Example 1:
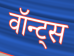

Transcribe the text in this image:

वॉन्ट्स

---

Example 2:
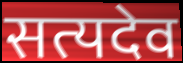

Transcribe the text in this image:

सत्‍यदेव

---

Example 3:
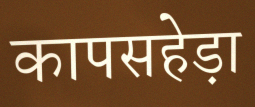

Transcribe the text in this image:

कापसहेड़ा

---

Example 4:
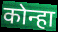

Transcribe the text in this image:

कोन्हा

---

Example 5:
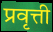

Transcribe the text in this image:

प्रवृत्ती